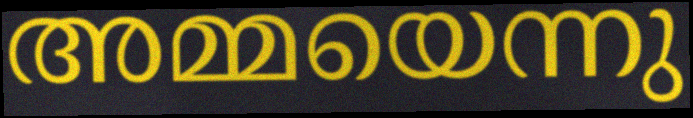
അമ്മയെന്നു